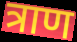
त्राण